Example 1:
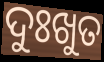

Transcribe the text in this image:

ଦୁଃଖୁତ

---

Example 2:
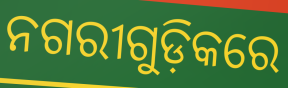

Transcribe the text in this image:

ନଗରୀଗୁଡ଼ିକରେ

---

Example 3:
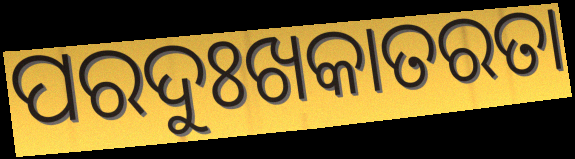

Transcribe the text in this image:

ପରଦୁଃଖକାତରତା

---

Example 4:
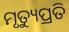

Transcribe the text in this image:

ମୃତ୍ୟୁପ୍ରତି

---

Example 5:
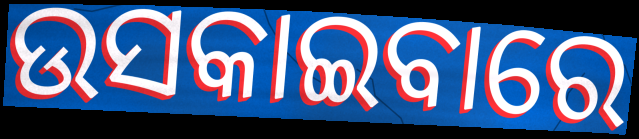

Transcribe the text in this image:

ଉସକାଇବାରେ